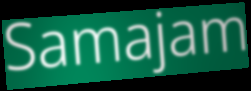
Samajam